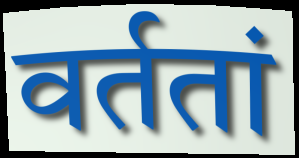
वर्ततां